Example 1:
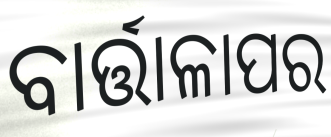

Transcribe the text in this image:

ବାର୍ତ୍ତାଳାପର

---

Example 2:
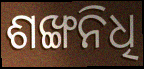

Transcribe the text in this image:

ଶଙ୍ଖନିଧି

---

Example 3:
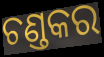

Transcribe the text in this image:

ଚଣ୍ଡକର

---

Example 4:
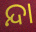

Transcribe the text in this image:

ନ୍ଦା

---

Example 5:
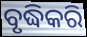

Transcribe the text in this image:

ବୃଦ୍ଧିକରି